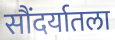
सौंदर्यातला